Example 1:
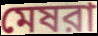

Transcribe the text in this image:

মেষরা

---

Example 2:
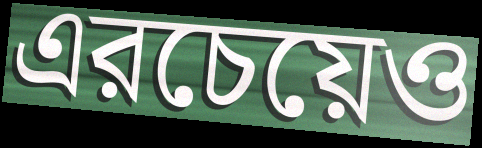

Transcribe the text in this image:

এরচেয়েও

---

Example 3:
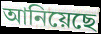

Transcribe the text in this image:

আনিয়েছে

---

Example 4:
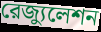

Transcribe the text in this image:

রেজ্যুলেশন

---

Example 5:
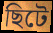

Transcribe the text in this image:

ছিটে